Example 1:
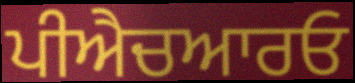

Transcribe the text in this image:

ਪੀਐਚਆਰਓ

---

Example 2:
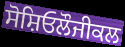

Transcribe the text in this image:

ਸੋਸ਼ਿਓਲੌਜੀਕਲ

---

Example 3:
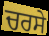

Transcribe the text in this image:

ਚਰਸੇ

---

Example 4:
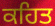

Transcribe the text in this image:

ਕਹਿਤ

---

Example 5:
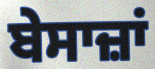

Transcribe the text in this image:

ਬੇਸਾਜ਼ਾਂ